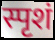
स्पृशं